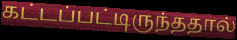
கட்டப்பட்டிருந்ததால்